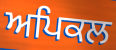
ਅਪਿਕਲ